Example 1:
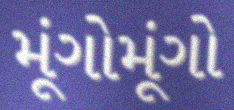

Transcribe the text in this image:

મૂંગોમૂંગો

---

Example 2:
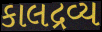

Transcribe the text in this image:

કાલદ્રવ્ય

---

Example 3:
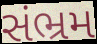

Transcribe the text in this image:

સંભ્રમ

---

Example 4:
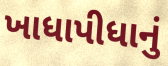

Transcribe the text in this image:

ખાધાપીધાનું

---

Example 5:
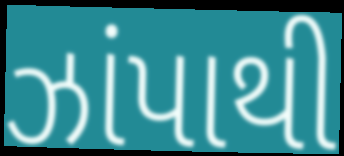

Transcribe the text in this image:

ઝાંપાથી